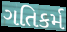
ગતિકર્મ